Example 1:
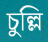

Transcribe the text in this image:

চুল্লি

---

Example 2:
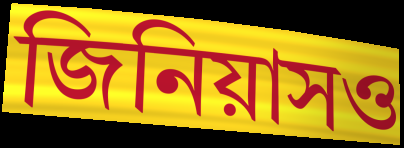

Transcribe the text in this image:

জিনিয়াসও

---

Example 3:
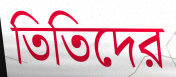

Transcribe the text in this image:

তিতিদের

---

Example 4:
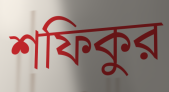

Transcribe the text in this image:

শফিকুর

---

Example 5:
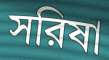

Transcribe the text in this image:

সরিষা